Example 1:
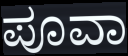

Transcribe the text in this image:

ಪೂವಾ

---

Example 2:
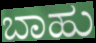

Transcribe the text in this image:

ಬಾಹು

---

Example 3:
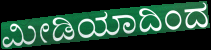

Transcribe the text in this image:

ಮೀಡಿಯಾದಿಂದ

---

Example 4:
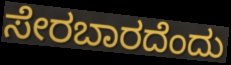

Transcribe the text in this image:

ಸೇರಬಾರದೆಂದು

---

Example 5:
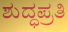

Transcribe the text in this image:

ಶುದ್ಧಪ್ರತಿ